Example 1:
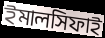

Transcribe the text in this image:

ইমালসিফাই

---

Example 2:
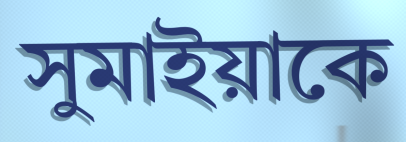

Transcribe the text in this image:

সুমাইয়াকে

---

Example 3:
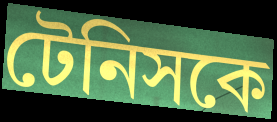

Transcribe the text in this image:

টেনিসকে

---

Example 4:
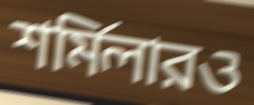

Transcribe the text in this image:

শর্মিলারও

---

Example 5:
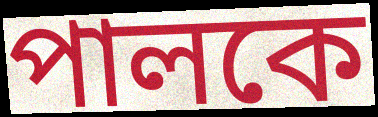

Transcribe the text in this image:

পালকে